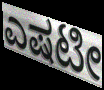
ಎಷಟೀ